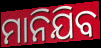
ମାନିଯିବ